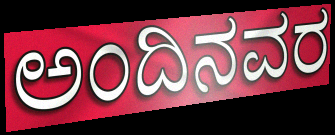
ಅಂದಿನವರ